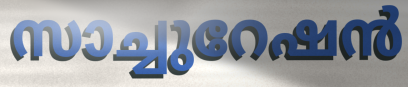
സാച്ചുറേഷൻ